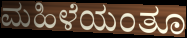
ಮಹಿಳೆಯಂತೂ